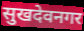
सुखदेवनगर